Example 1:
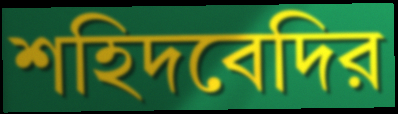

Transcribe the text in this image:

শহিদবেদির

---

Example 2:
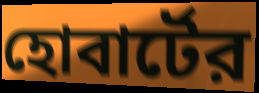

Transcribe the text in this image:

হোবার্টের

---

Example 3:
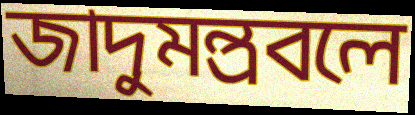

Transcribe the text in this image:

জাদুমন্ত্রবলে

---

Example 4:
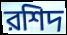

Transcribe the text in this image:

রশিদ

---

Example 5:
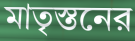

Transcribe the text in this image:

মাতৃস্তনের